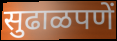
सुढाळपणें